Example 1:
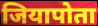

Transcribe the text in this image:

जियापोता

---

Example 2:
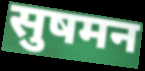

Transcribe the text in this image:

सुषमन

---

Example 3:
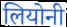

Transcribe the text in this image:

लियोनी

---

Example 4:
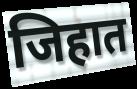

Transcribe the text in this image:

जिहात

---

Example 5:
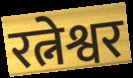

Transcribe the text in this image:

रत्नेश्वर